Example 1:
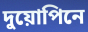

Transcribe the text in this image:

দুয়োপিনে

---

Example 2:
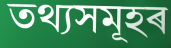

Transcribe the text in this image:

তথ্যসমূহৰ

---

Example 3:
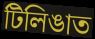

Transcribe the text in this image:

টিলিঙাত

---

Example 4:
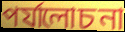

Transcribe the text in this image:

পৰ্যালোচনা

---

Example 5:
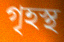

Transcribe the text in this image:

গৃহস্থ